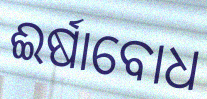
ଈର୍ଷାବୋଧ